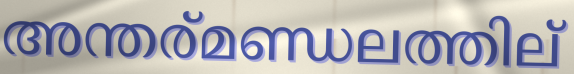
അന്തര്മണ്ഡലത്തില്